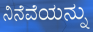
ನಿನೆವೆಯನ್ನು